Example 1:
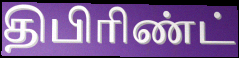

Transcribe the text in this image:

திபிரிண்ட்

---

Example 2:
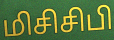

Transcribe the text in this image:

மிசிசிபி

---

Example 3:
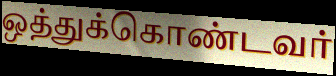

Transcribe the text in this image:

ஒத்துக்கொண்டவர்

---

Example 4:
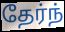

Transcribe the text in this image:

தேர்ந்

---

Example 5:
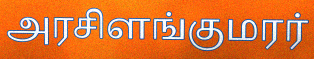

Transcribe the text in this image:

அரசிளங்குமரர்